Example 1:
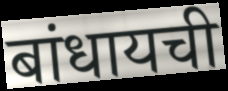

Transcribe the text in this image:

बांधायची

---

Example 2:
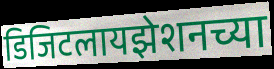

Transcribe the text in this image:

डिजिटलायझेशनच्या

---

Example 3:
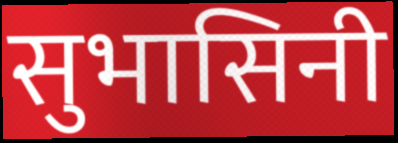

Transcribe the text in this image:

सुभासिनी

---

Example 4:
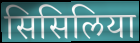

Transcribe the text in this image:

सिसिलिया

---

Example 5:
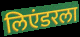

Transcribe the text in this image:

लिएंडरला